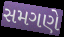
સમગણે